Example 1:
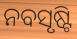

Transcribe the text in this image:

ନବସୃଷ୍ଟି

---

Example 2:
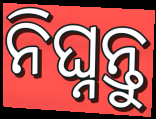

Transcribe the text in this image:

ନିଘ୍ନନ୍ତୁ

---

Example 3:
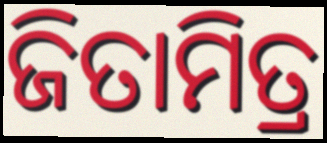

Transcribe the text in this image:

ଜିତାମିତ୍ର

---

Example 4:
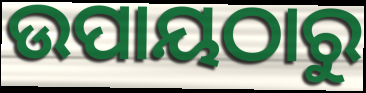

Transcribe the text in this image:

ଉପାୟଠାରୁ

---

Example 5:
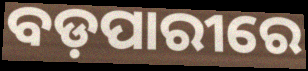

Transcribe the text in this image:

ବଡ଼ପାରୀରେ